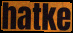
hatke